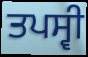
ਤਪਸ੍ਵੀ